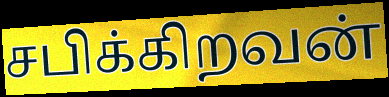
சபிக்கிறவன்